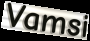
Vamsi